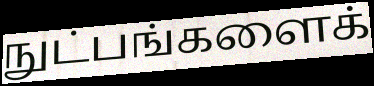
நுட்பங்களைக்